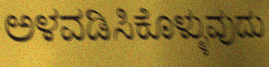
ಅಳವಡಿಸಿಕೊಳ್ಳುವುದು